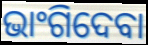
ଭାଂଗିଦେବା